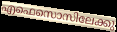
എഫെസൊസിലേക്കു